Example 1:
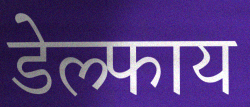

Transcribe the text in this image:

डेल्फाय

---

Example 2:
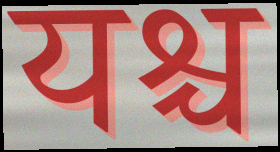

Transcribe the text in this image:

यश्च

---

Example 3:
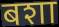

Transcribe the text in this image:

बशा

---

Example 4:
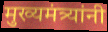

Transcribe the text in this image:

मुख्यमंत्र्यांनी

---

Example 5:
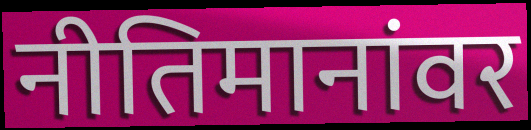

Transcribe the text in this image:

नीतिमानांवर